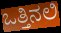
ಒತ್ತಿನಲಿ